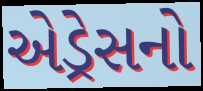
એડ્રેસનો